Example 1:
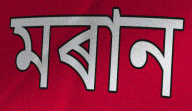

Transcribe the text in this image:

মৰান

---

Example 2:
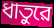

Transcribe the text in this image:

ধাতুৱে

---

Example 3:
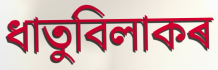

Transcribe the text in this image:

ধাতুবিলাকৰ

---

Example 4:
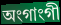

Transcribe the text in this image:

অংগাংগী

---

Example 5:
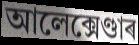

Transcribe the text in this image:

আলেক্সেণ্ডাৰ